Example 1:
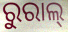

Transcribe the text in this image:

ରୁରାଲ୍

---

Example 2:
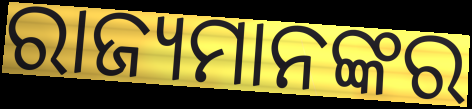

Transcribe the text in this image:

ରାଜ୍ୟମାନଙ୍କର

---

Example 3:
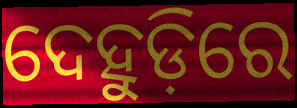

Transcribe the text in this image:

ଦେହୁଡ଼ିରେ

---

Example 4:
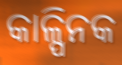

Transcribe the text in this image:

କାଳ୍ପିନକ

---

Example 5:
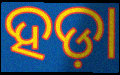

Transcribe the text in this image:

ହଡ଼ା